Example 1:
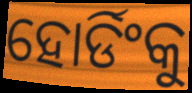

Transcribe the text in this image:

ହୋର୍ଡିଂକୁ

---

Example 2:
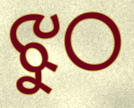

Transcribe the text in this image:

ଝୁଠ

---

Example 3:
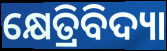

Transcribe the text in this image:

କ୍ଷେତ୍ରିବିଦ୍ୟା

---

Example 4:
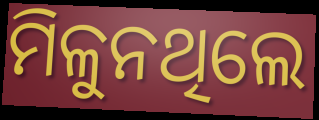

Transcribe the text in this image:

ମିଳୁନଥିଲେ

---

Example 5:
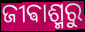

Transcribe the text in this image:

ଜୀଵାଶ୍ମରୁ